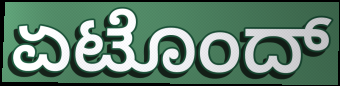
ಏಟೊಂದ್